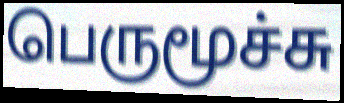
பெருமூச்சு